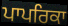
ਪਾਪਰਿਕਾ